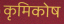
कृमिकोष